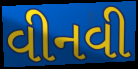
વીનવી